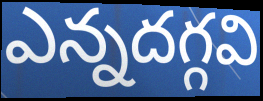
ఎన్నదగ్గవి